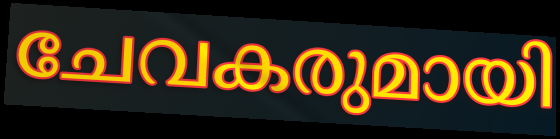
ചേവകരുമായി